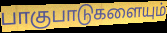
பாகுபாடுகளையும்